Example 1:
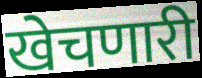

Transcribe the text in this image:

खेचणारी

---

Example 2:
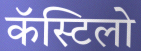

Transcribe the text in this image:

कॅस्टिलो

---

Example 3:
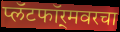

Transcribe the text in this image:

प्लॅटफॉर्मवरचा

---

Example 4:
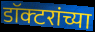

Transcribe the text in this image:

डॉक्‍टरांच्या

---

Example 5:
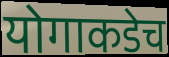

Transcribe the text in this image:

योगाकडेच